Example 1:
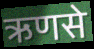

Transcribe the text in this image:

ऋणसे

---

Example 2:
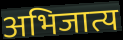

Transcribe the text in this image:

अभिजात्य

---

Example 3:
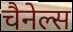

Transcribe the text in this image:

चैनेल्स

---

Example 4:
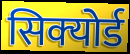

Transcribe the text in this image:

सिक्‍योर्ड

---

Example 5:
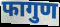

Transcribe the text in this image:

फागुण